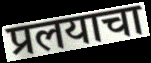
प्रलयाचा